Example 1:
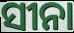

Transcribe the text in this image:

ସୀନା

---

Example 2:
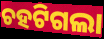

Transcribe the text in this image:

ଚହଟିଗଲା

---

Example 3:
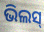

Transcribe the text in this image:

ଭିଲସ୍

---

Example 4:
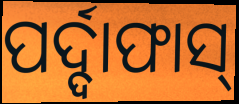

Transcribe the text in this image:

ପର୍ଦ୍ଦାଫାସ୍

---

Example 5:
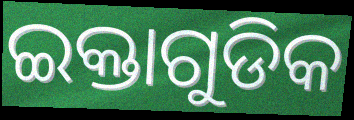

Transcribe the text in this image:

ଇକ୍ତାଗୁଡିକ